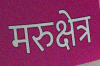
मरुक्षेत्र